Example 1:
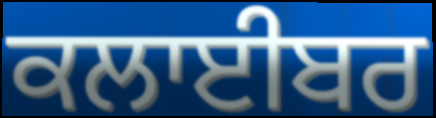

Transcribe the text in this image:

ਕਲਾਈਬਰ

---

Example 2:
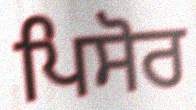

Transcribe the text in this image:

ਪਿਸੋਰ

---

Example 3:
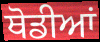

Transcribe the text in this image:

ਥੋਡੀਆਂ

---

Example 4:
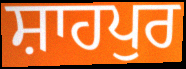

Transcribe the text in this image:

ਸ਼ਾਹਪੁਰ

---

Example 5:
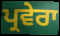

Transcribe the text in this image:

ਪ੍ਰਵੇਰਾ